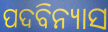
ପଦବିନ୍ୟାସ